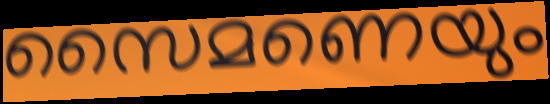
സൈമണെയും